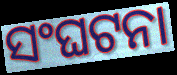
ସଂଘଟନା